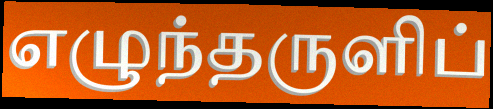
எழுந்தருளிப்